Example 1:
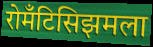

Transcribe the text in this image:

रोमँटिसिझमला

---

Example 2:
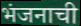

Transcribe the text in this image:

भंजनाची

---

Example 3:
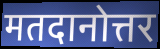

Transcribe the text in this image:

मतदानोत्तर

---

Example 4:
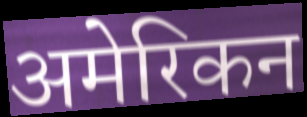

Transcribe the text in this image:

अमेरिकन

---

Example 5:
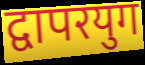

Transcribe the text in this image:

द्वापरयुग